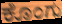
ಕೊಂಗು